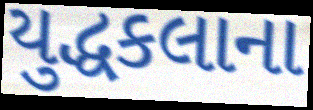
યુદ્ધકલાના